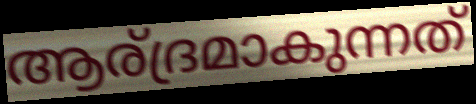
ആര്ദ്രമാകുന്നത്